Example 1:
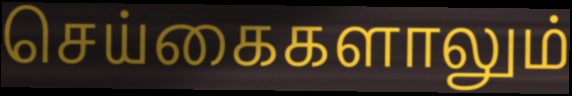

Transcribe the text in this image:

செய்கைகளாலும்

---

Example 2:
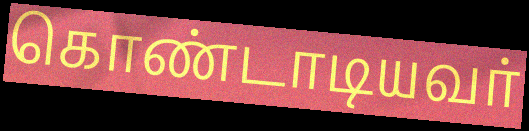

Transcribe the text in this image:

கொண்டாடியவர்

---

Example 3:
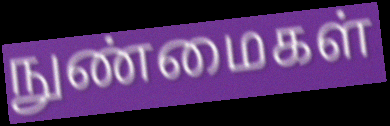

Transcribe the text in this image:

நுண்மைகள்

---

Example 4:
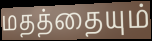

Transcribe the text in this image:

மதத்தையும்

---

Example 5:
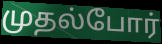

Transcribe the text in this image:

முதல்போர்